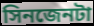
সিনজেনটা